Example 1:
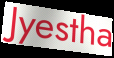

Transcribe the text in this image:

Jyestha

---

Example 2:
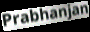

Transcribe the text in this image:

Prabhanjan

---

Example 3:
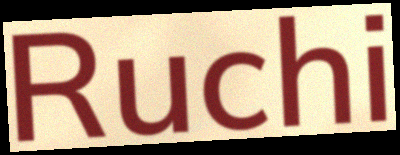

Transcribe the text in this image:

Ruchi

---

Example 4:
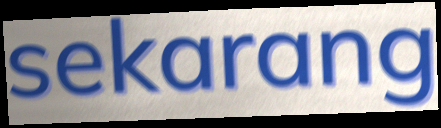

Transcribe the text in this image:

sekarang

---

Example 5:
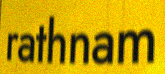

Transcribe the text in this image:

rathnam